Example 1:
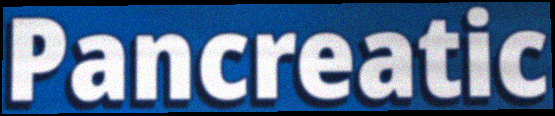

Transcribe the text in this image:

Pancreatic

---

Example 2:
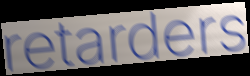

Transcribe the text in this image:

retarders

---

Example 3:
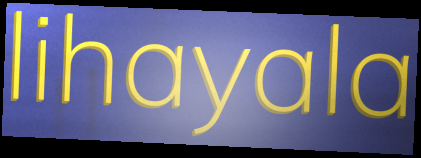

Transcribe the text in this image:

lihayala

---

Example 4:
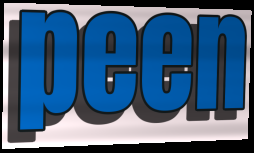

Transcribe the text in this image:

peen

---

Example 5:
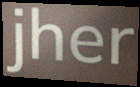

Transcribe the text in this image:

jher